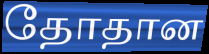
தோதான